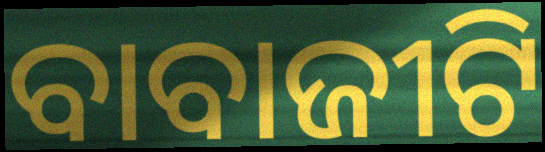
ବାବାଜୀଟି